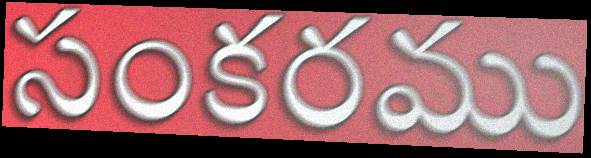
సంకరము